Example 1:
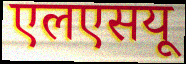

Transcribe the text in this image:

एलएसयू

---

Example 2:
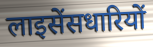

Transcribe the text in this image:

लाइसेंसधारियों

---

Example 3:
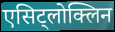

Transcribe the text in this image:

एसिट्लोक्लिन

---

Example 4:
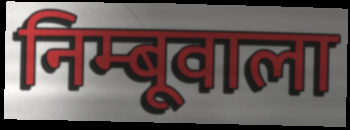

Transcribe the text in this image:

निम्बूवाला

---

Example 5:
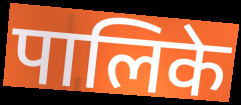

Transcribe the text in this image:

पालिके